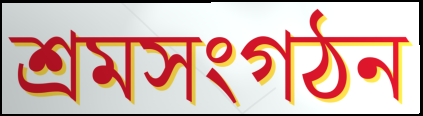
শ্রমসংগঠন